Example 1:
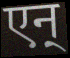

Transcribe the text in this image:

एन्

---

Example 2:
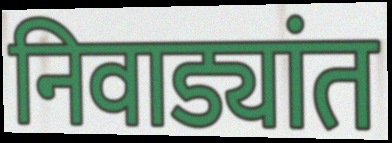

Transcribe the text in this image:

निवाड्यांत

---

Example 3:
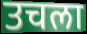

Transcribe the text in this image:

उचला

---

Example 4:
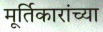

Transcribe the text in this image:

मूर्तिकारांच्या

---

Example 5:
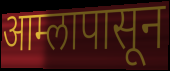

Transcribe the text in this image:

आम्लापासून